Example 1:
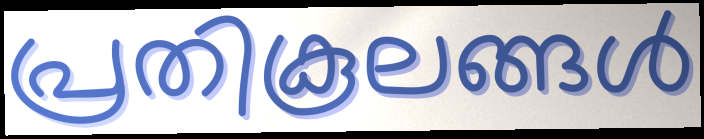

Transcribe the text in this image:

പ്രതികൂലങ്ങൾ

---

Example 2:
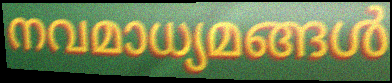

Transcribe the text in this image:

നവമാധ്യമങ്ങൾ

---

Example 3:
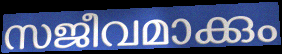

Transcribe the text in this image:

സജീവമാക്കും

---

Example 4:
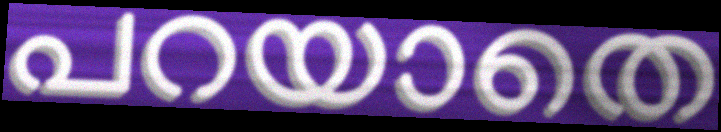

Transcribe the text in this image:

പറയാതെ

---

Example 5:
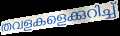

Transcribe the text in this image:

തവളകളെക്കുറിച്ച്